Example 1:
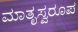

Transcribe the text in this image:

ಮಾತೃಸ್ವರೂಪ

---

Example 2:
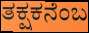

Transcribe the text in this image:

ತಕ್ಷಕನೆಂಬ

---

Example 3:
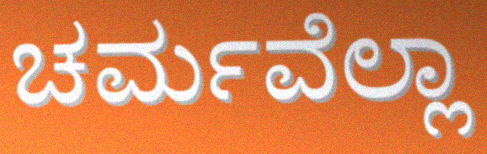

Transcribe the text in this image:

ಚರ್ಮವೆಲ್ಲಾ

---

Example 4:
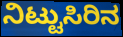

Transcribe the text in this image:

ನಿಟ್ಟುಸಿರಿನ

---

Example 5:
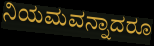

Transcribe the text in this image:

ನಿಯಮವನ್ನಾದರೂ